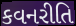
કવનરીતિ